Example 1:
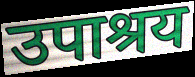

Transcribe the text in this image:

उपाश्रय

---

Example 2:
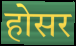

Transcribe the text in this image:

होसर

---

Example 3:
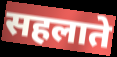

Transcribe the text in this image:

सहलाते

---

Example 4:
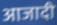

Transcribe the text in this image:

आजादी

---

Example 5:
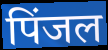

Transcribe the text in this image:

पिंजल